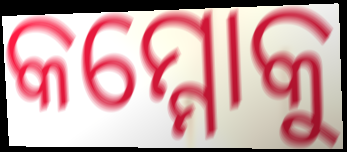
କମ୍ମୋକୁ